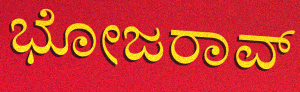
ಭೋಜರಾವ್